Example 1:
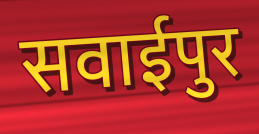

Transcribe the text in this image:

सवाईपुर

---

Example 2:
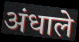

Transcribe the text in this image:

अंधाले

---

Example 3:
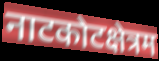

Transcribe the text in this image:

नाटकोटक्षेत्रम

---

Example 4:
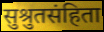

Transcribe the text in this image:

सुश्रुतसंहिता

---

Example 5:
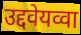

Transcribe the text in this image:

उद्दवेयव्वा